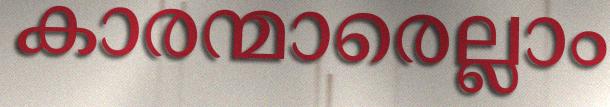
കാരന്മാരെല്ലാം